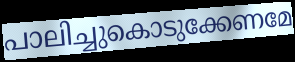
പാലിച്ചുകൊടുക്കേണമേ